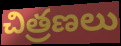
చిత్రణలు